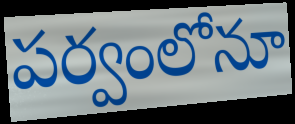
పర్వంలోనూ